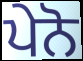
ਪੇਨੋ